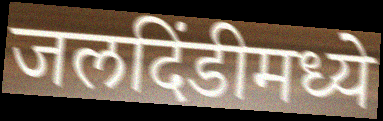
जलदिंडीमध्ये